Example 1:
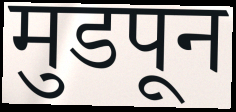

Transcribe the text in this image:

मुडपून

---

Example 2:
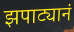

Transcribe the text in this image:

झपाट्यानं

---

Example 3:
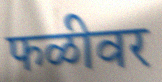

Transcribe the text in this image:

फळीवर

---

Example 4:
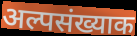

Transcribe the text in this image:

अल्पसंख्याक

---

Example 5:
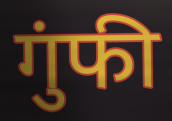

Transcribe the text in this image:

गुंफी